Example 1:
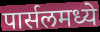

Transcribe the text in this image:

पार्सलमध्ये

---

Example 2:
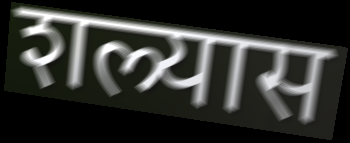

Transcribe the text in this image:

शल्यास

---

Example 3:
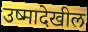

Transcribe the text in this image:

उष्मादेखील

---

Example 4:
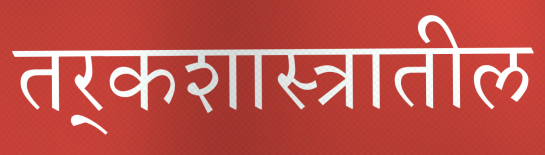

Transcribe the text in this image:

तर्कशास्त्रातील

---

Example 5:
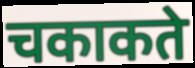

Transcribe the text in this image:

चकाकते